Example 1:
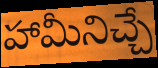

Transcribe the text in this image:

హామీనిచ్చే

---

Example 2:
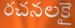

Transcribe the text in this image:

రచనలకై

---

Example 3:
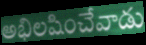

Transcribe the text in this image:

అభిలషించేవాడు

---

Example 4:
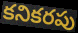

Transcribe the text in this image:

కనికరపు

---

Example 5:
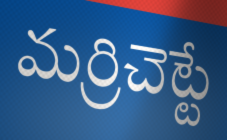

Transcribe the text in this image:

మర్రిచెట్టే